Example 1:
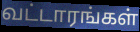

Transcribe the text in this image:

வட்டாரங்கள்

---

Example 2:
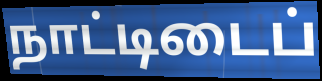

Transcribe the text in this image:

நாட்டிடைப்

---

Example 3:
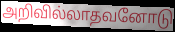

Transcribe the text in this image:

அறிவில்லாதவனோடு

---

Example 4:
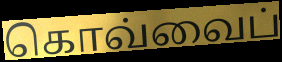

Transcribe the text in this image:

கொவ்வைப்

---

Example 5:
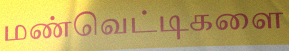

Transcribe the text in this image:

மண்வெட்டிகளை